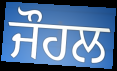
ਜੌਹਲ